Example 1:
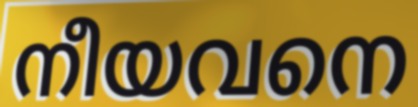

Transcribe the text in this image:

നീയവനെ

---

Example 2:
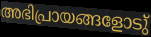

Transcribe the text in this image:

അഭിപ്രായങ്ങളോടു്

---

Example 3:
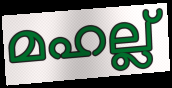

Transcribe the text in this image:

മഹല്ല്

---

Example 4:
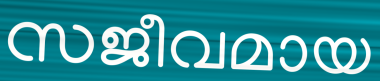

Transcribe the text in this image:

സജീവമായ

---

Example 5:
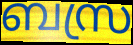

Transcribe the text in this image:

ബസ്ര